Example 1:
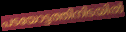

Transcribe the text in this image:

പടയോട്ടത്തിനിടയിൽ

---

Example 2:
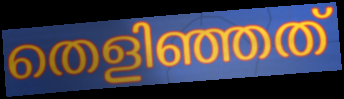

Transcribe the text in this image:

തെളിഞ്ഞത്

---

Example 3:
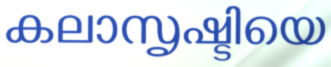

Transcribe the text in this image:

കലാസൃഷ്ടിയെ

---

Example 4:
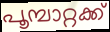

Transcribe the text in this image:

പൂമ്പാറ്റക്ക്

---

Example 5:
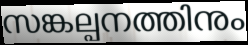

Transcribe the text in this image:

സങ്കല്പനത്തിനും